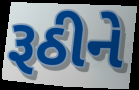
રૂઠીને